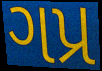
ગપ્ર